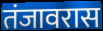
तंजावरास